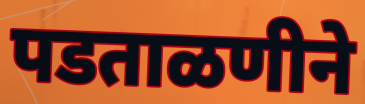
पडताळणीने